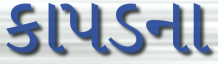
કાપડના